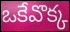
ఒకేవొక్క